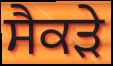
ਸੈਕੜੇ